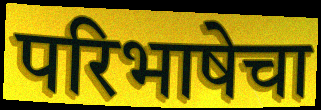
परिभाषेचा